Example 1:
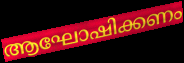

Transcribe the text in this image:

ആഘോഷിക്കണം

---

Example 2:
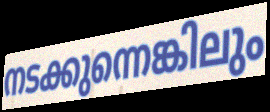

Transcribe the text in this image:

നടക്കുന്നെങ്കിലും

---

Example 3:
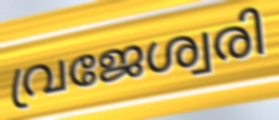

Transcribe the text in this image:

വ്രജേശ്വരി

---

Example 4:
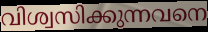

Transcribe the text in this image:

വിശ്വസിക്കുന്നവനെ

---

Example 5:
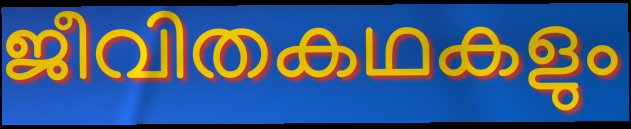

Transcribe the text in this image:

ജീവിതകഥകളും